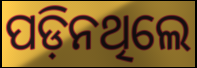
ପଡ଼ିନଥିଲେ